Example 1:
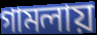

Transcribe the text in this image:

গামলায়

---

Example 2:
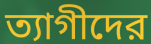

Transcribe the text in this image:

ত্যাগীদের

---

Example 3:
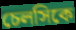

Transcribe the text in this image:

চেলসিকে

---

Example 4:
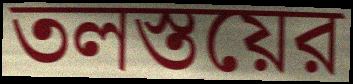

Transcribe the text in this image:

তলস্তয়ের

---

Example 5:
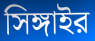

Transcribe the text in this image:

সিঙ্গাইর